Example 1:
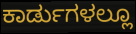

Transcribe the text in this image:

ಕಾರ್ಡುಗಳಲ್ಲೂ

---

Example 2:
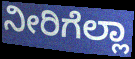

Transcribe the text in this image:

ನೀರಿಗೆಲ್ಲಾ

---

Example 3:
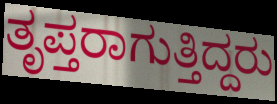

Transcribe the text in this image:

ತೃಪ್ತರಾಗುತ್ತಿದ್ದರು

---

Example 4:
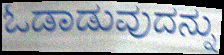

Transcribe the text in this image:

ಓಡಾಡುವುದನ್ನು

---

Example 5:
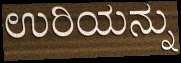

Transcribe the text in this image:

ಉರಿಯನ್ನು